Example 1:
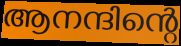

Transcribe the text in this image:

ആനന്ദിന്റെ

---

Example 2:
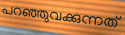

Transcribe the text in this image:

പറഞ്ഞുവക്കുന്നത്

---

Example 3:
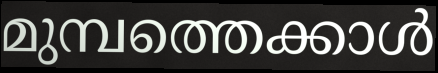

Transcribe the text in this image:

മുമ്പത്തെക്കാൾ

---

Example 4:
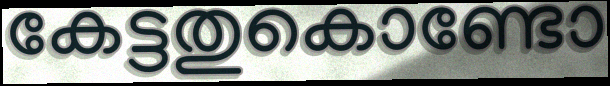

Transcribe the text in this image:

കേട്ടതുകൊണ്ടോ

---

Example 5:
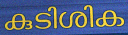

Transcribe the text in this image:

കുടിശിക